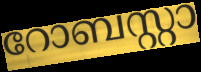
റോബസ്റ്റാ